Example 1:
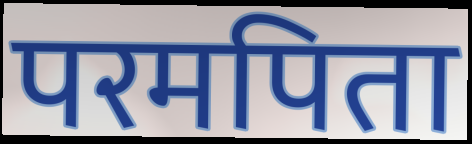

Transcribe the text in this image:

परमपिता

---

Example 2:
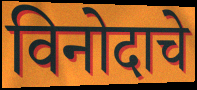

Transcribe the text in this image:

विनोदाचे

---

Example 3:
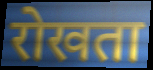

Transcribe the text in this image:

रोखता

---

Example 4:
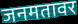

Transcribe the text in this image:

जनमतावर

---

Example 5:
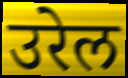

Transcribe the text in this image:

उरेल